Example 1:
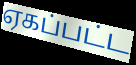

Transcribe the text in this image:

ஏகப்பட்ட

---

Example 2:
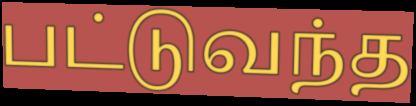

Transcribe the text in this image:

பட்டுவந்த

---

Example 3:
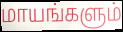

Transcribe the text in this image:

மாயங்களும்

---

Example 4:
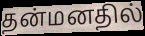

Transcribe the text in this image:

தன்மனதில்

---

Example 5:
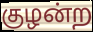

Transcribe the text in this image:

குழன்ற